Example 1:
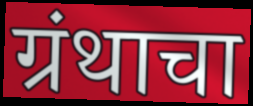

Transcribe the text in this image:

ग्रंथाचा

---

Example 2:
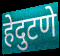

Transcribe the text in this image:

हेदुटणे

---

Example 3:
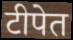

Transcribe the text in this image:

टीपेत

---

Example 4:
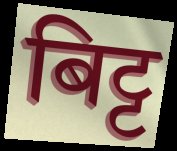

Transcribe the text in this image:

बिट्ट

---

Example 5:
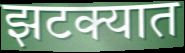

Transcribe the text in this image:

झटक्‍यात